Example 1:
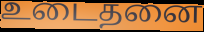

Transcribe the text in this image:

உடைதனை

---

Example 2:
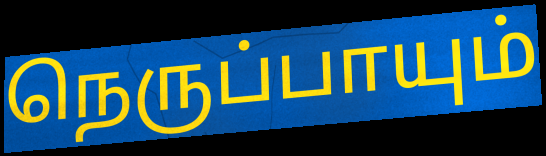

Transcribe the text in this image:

நெருப்பாயும்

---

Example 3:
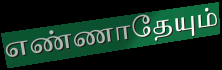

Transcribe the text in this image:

எண்ணாதேயும்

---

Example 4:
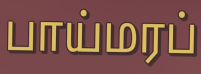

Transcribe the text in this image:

பாய்மரப்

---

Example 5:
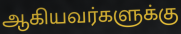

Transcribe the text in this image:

ஆகியவர்களுக்கு